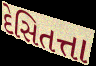
દેસિતત્તા